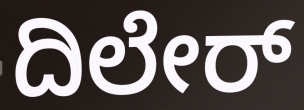
ದಿಲೇರ್